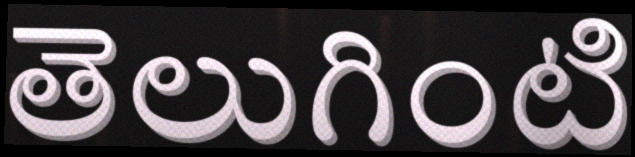
తెలుగింటి